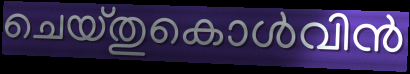
ചെയ്തുകൊൾവിൻ